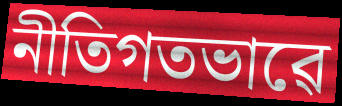
নীতিগতভাৱে